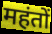
महंतों